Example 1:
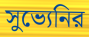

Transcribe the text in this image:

সুভ্যেনির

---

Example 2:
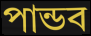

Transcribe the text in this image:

পান্ডব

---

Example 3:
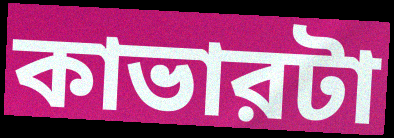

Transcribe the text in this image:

কাভারটা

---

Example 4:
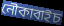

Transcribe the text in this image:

নৌকাবাইচ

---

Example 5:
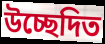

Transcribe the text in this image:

উচ্ছেদিত